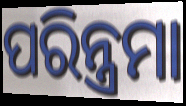
ପରିନ୍ତ୍ରମା